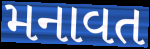
મનાવત